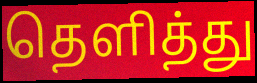
தெளித்து